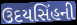
ઉદયસિંહની